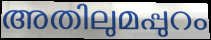
അതിലുമപ്പുറം